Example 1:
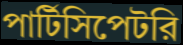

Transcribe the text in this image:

পার্টিসিপেটরি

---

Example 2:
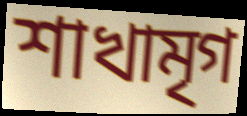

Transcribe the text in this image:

শাখামৃগ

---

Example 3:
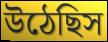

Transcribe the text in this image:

উঠেছিস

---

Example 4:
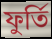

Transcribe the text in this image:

ফুর্তি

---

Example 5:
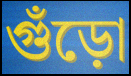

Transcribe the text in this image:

গুঁড়ো